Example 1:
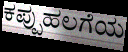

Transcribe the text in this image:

ಕಪ್ಪುಹಲಗೆಯ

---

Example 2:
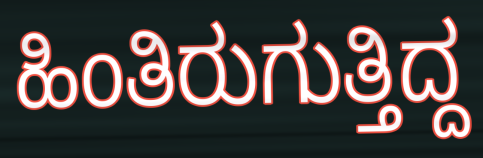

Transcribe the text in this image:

ಹಿಂತಿರುಗುತ್ತಿದ್ದ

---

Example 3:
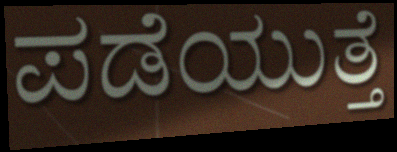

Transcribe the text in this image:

ಪಡೆಯುತ್ತೆ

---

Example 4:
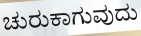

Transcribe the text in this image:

ಚುರುಕಾಗುವುದು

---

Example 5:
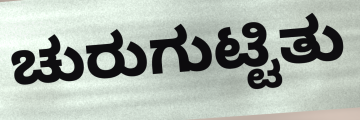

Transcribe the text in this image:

ಚುರುಗುಟ್ಟಿತು